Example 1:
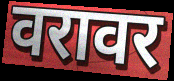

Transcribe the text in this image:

वरावर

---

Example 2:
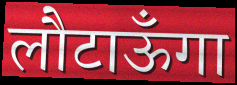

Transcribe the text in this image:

लौटाऊँगा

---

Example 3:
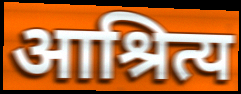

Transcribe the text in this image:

आश्रित्य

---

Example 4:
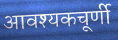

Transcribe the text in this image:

आवश्यकचूर्णी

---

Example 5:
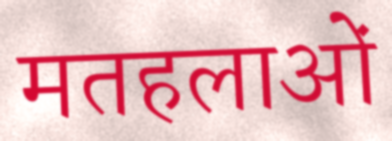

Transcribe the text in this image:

मतहलाओं